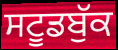
ਸਟੂਡਬੁੱਕ